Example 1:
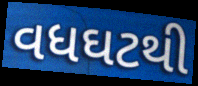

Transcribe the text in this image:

વધઘટથી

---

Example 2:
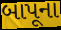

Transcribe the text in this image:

બાપૂના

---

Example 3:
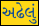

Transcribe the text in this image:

અઢેલું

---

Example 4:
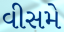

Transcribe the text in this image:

વીસમે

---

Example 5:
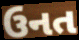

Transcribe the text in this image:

ઉનત